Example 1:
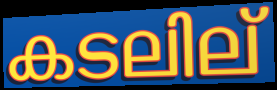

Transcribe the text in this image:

കടലില്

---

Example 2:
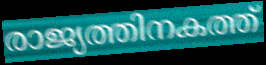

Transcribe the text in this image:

രാജ്യത്തിനകത്ത്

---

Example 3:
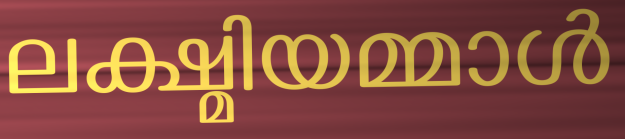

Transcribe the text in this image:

ലക്ഷ്മിയമ്മാൾ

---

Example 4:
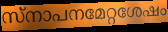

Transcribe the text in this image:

സ്നാപനമേറ്റശേഷം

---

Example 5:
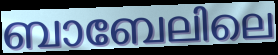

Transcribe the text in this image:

ബാബേലിലെ